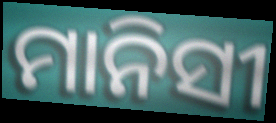
ମାନିସୀ